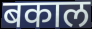
बकाल